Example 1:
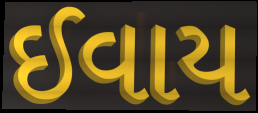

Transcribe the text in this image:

ઈવાય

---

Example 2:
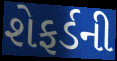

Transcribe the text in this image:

શેફર્ડની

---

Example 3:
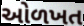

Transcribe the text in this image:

ઓળખત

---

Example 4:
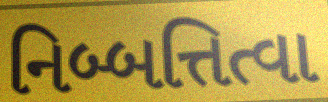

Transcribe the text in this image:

નિબ્બત્તિત્વા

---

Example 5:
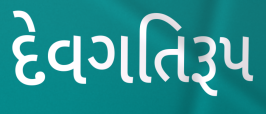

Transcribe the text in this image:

દેવગતિરૂપ